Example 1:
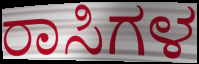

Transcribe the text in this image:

ರಾಸಿಗಳ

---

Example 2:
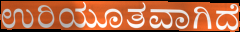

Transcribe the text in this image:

ಉರಿಯೂತವಾಗಿದೆ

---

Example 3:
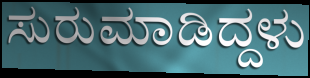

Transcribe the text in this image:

ಸುರುಮಾಡಿದ್ದಳು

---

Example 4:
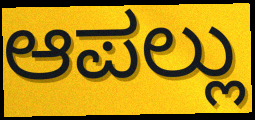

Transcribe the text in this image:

ಆಪಲ್ಲು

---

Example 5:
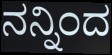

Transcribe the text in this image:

ನನ್ನಿಂದ